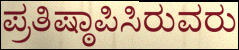
ಪ್ರತಿಷ್ಠಾಪಿಸಿರುವರು